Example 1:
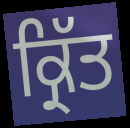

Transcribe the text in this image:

ਕ੍ਰਿੱਤ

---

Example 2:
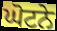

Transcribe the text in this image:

ਘੋਟਨੇ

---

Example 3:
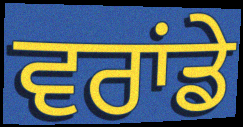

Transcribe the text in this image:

ਵਰਾਂਡੇ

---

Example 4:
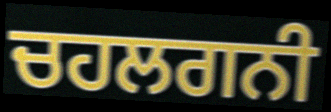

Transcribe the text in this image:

ਚਹਲਗਨੀ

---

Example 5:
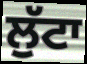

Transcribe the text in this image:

ਲੁੱਟਾ